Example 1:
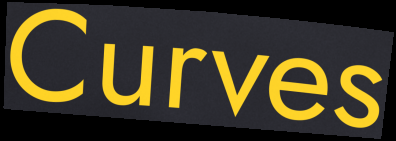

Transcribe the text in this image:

Curves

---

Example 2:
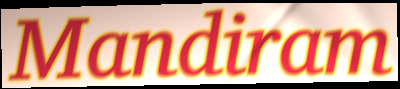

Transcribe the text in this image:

Mandiram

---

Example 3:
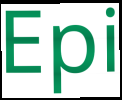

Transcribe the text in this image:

Epi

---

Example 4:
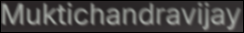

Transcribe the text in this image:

Muktichandravijay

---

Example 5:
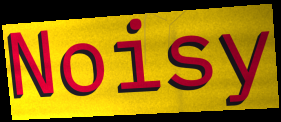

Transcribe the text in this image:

Noisy